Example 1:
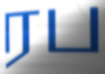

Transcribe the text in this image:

ரப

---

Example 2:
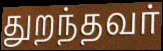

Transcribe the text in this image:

துறந்தவர்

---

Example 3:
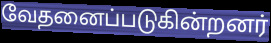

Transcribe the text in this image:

வேதனைப்படுகின்றனர்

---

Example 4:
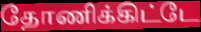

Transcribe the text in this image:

தோணிக்கிட்டே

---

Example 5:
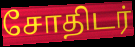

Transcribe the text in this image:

சோதிடர்